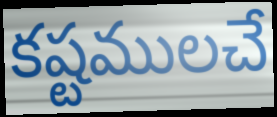
కష్టములచే